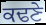
ਕਢਣੇ